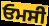
ਓਮਸੀ